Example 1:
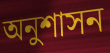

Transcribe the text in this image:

অনুশাসন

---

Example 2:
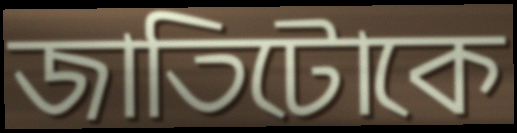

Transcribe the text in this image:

জাতিটোকে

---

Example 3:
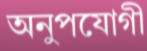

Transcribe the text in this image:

অনুপযোগী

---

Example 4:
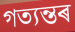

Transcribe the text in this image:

গত্যন্তৰ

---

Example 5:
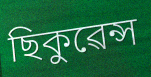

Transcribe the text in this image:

ছিকুৱেন্স